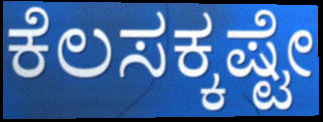
ಕೆಲಸಕ್ಕಷ್ಟೇ